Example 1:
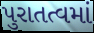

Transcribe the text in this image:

પુરાતત્વમાં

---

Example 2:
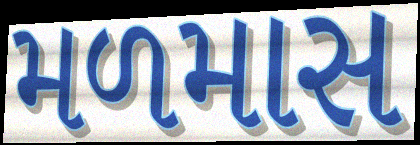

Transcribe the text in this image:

મળમાસ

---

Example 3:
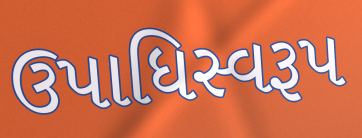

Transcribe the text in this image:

ઉપાધિસ્વરૂપ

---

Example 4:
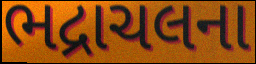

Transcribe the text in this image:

ભદ્રાચલના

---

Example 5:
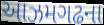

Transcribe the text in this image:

આઝમગઢના